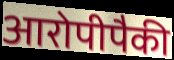
आरोपीपैकी